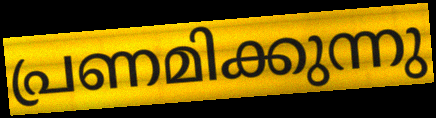
പ്രണമിക്കുന്നു